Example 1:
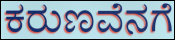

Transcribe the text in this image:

ಕರುಣವೆನಗೆ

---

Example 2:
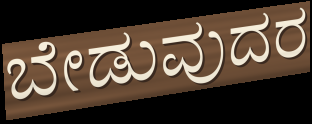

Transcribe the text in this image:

ಬೇಡುವುದರ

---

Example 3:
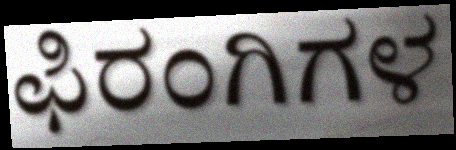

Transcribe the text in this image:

ಫಿರಂಗಿಗಳ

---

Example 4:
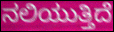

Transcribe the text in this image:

ನಲಿಯುತ್ತಿದೆ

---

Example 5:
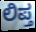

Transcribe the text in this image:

ಲಿಪ್ತ